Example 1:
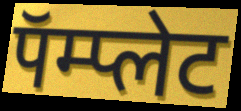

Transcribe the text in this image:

पॅम्प्लेट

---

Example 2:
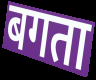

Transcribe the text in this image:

बगता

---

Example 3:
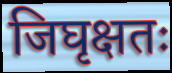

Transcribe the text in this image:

जिघृक्षतः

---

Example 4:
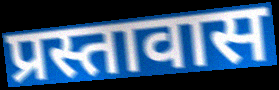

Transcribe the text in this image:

प्रस्तावास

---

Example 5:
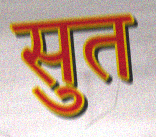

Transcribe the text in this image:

सुत